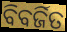
ବିବର୍ଜିତ